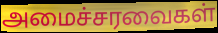
அமைச்சரவைகள்